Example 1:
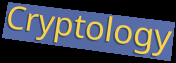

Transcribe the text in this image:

Cryptology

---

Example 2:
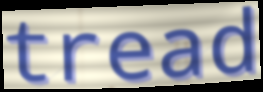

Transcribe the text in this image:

tread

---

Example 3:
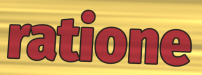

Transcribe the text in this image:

ratione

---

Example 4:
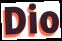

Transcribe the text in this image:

Dio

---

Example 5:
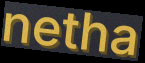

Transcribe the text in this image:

netha